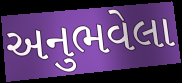
અનુભવેલા